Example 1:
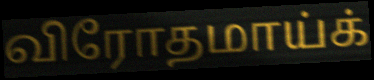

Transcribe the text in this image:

விரோதமாய்க்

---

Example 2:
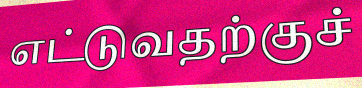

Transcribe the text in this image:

எட்டுவதற்குச்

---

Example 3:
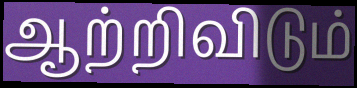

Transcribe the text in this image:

ஆற்றிவிடும்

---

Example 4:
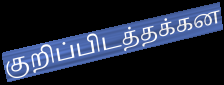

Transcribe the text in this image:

குறிப்பிடத்தக்கன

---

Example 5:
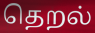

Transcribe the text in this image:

தெறல்